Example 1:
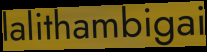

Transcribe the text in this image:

lalithambigai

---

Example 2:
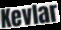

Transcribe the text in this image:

Kevlar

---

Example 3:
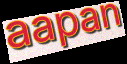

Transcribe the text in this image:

aapan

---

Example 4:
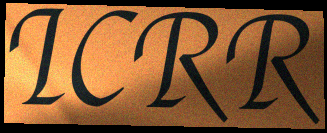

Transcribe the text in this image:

ICRR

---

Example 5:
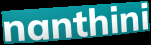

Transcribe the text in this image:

nanthini